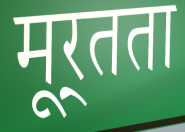
मूर्तता